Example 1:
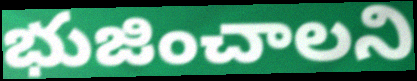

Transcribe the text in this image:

భుజించాలని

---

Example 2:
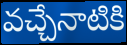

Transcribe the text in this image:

వచ్చేనాటికి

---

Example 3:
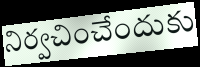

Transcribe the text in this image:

నిర్వచించేందుకు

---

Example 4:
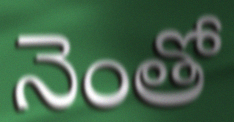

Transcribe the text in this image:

నెంతో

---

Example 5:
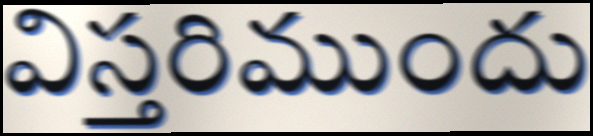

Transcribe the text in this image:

విస్తరిముందు